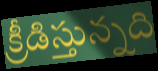
క్రీడిస్తున్నది